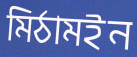
মিঠামইন